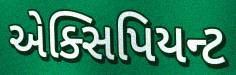
એક્સિપિયન્ટ